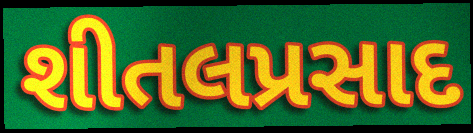
શીતલપ્રસાદ